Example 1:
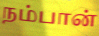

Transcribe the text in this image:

நம்பான்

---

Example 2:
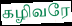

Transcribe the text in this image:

கழிவரே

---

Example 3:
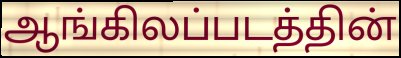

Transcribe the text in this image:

ஆங்கிலப்படத்தின்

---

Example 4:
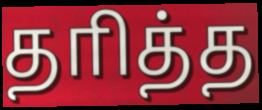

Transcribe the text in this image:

தரித்த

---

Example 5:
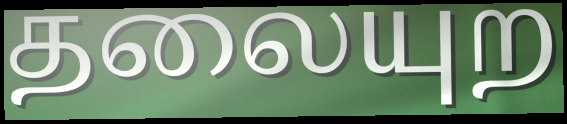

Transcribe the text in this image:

தலையுற